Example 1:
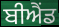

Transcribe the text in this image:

ਬੀਐਂਡ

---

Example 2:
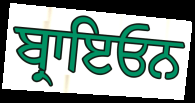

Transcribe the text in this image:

ਬ੍ਰਾਇਓਨ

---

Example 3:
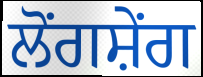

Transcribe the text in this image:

ਲੋਂਗਸ਼ੇਂਗ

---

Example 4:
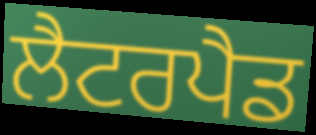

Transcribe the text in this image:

ਲੈਟਰਪੈਡ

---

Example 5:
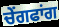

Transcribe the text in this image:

ਚੇਂਗਫਾਂਗ